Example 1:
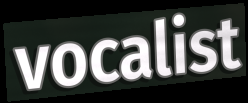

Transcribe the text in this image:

vocalist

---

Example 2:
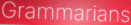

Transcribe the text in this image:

Grammarians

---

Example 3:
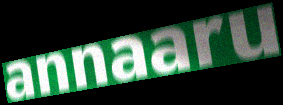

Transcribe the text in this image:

annaaru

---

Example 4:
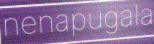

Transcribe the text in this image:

nenapugala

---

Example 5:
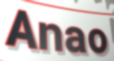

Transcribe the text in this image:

Anao